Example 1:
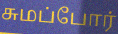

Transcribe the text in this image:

சுமப்போர்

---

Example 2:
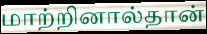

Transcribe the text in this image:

மாற்றினால்தான்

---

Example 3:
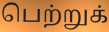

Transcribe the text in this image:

பெற்றுக்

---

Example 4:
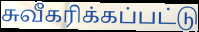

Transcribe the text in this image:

சுவீகரிக்கப்பட்டு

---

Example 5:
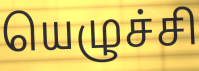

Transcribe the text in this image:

யெழுச்சி